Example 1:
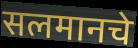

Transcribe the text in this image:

सलमानचे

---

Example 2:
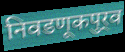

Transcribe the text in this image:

निवडणूकपुर्व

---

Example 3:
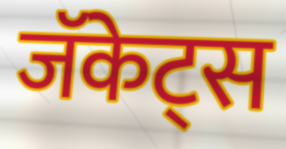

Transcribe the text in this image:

जॅकेट्स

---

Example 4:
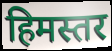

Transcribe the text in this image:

हिमस्तर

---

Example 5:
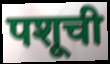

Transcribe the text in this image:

पशूची